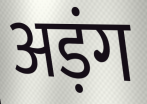
अड़ंग